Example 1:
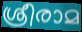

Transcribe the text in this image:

ശ്രീരാമ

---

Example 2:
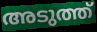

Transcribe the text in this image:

അടുത്ത്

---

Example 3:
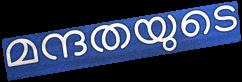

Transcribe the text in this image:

മന്ദതയുടെ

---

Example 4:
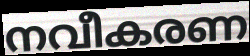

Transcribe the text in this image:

നവീകരണ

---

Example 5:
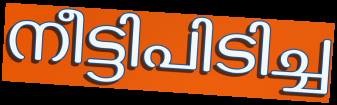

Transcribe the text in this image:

നീട്ടിപിടിച്ച